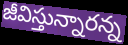
జీవిస్తున్నారన్న